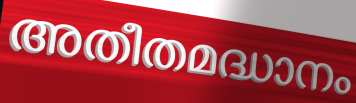
അതീതമദ്ധാനം